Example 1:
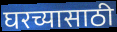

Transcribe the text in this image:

घरच्यासाठी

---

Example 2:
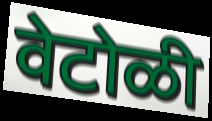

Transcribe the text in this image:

वेटोळी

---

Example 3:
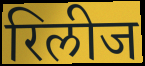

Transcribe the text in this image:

रिलीज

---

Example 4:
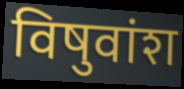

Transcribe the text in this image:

विषुवांश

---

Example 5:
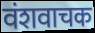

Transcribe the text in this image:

वंशवाचक